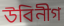
উবিনীগ